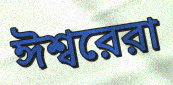
ঈশ্বরেরা